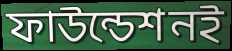
ফাউন্ডেশনই